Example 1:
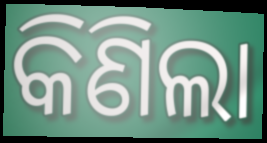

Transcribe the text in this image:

କିଣିଲା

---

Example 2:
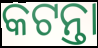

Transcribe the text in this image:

କଟନ୍ତା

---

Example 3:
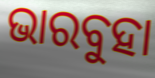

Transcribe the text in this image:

ଭାରବୁହା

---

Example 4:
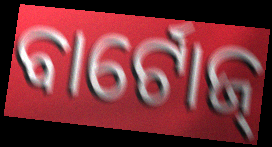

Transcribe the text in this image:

ବାର୍ଟୋଜ୍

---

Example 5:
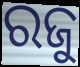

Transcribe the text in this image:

ରଜୁ